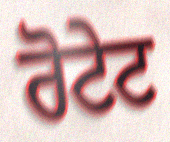
ਰੋਟੇਟ